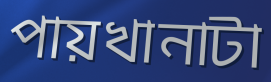
পায়খানাটা